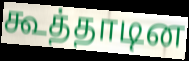
கூத்தாடின